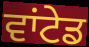
ਵਾਂਟੇਡ